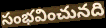
సంభవించునది